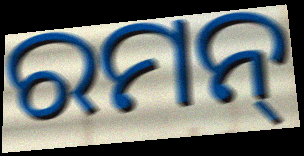
ରମନ୍